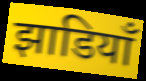
झाडियाँ